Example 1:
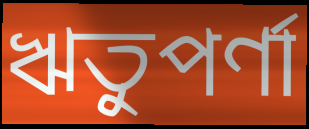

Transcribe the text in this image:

ঋতুপর্ণা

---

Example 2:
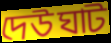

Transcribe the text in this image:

দেউঘাট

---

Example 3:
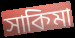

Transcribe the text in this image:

সাকিমা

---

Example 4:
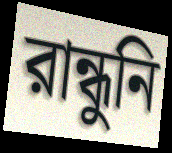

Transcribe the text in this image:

রান্ধুনি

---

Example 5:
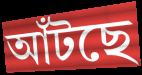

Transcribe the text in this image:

আঁটছে